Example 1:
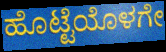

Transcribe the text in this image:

ಹೊಟ್ಟೆಯೊಳಗೇ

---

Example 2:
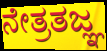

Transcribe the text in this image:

ನೇತ್ರತಜ್ಞ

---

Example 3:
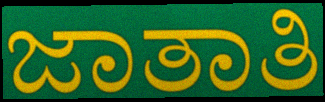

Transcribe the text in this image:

ಜಾತಾತಿ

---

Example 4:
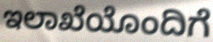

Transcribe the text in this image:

ಇಲಾಖೆಯೊಂದಿಗೆ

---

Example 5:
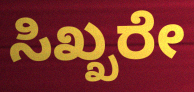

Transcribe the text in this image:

ಸಿಖ್ಖರೇ